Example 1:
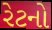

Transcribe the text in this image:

રેટનો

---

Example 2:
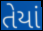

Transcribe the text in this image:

તેયાં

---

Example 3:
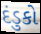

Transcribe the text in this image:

દંડુકો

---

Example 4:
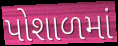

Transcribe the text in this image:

પોશાળમાં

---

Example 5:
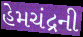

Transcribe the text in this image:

હેમચંદ્રની